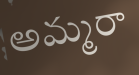
అమ్మరా